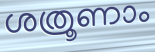
ശത്രൂണാം